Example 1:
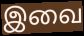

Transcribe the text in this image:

இவை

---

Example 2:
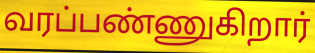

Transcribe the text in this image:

வரப்பண்ணுகிறார்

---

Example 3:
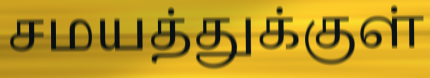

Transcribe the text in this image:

சமயத்துக்குள்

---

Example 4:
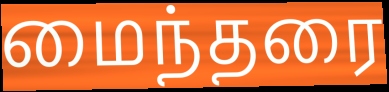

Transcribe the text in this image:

மைந்தரை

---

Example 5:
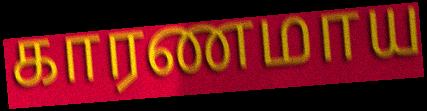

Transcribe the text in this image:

காரணமாய